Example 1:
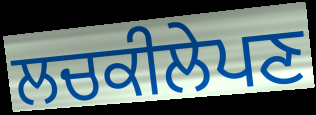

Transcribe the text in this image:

ਲਚਕੀਲੇਪਣ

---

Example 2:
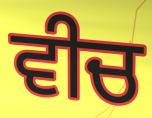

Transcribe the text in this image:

ਵੀਚ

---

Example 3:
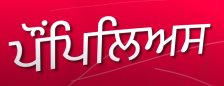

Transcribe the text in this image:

ਪੌਂਪਿਲਿਅਸ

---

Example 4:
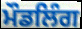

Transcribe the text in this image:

ਮੌਡਲਿੰਗ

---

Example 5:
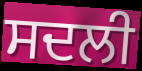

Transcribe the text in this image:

ਸਦਲੀ